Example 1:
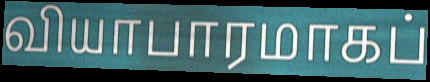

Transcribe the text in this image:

வியாபாரமாகப்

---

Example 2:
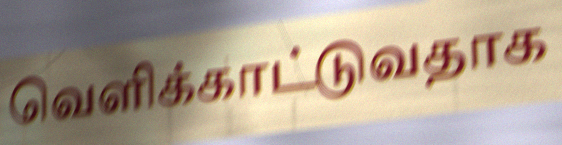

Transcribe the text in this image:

வெளிக்காட்டுவதாக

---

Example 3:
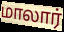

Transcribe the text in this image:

மாலார்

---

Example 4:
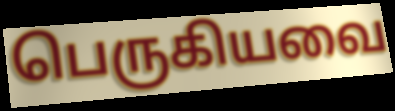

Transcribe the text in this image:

பெருகியவை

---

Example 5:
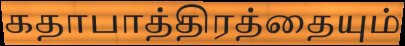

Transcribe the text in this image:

கதாபாத்திரத்தையும்